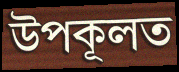
উপকূলত